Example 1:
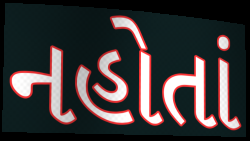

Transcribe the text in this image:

નહોતાં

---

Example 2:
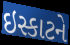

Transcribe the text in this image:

ઇસ્કાટને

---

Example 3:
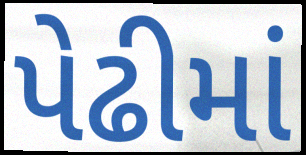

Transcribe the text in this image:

પેઢીમાં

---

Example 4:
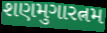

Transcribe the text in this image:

શણમુગારત્નમ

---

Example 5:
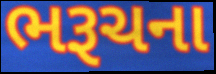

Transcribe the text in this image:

ભરૂચના